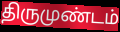
திருமுண்டம்